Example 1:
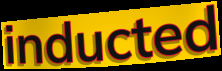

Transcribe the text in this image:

inducted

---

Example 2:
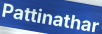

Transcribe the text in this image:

Pattinathar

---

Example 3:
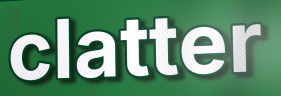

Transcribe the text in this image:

clatter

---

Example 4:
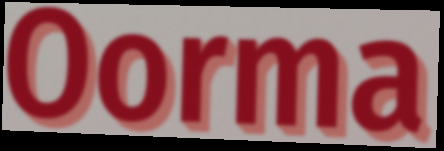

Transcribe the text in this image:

Oorma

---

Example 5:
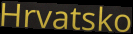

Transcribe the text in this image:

Hrvatsko